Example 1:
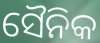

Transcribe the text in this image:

ସୈନିକ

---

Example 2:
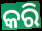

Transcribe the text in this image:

କରି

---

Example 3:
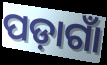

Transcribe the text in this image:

ପଡ଼ାଗାଁ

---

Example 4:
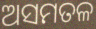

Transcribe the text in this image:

ଅସମତଳ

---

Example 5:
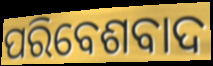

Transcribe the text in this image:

ପରିବେଶବାଦ